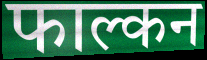
फाल्कन